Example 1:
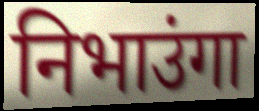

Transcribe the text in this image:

निभाउंगा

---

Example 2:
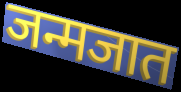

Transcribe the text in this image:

जन्मजात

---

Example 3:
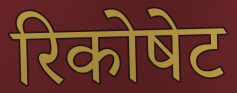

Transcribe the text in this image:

रिकोषेट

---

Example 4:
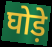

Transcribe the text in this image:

घोड़े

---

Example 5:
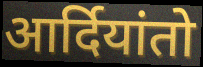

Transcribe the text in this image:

आर्दियांतो